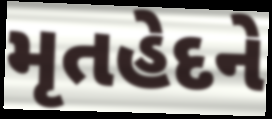
મૃતહેદને